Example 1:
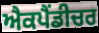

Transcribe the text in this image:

ਐਕਪੈਂਡੀਚਰ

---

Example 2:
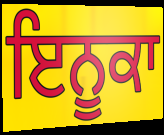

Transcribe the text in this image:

ਇਨੂਕਾ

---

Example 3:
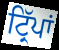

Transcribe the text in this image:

ਟ੍ਰਿੱਪਾਂ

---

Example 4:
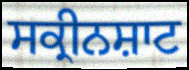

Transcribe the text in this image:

ਸਕ੍ਰੀਨਸ਼ਾਟ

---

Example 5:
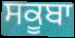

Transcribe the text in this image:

ਸਕੂਬਾ